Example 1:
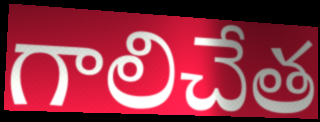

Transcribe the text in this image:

గాలిచేత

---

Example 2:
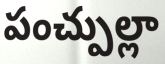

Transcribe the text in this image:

పంచ్పుల్లా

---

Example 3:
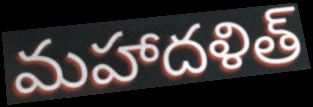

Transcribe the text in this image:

మహాదళిత్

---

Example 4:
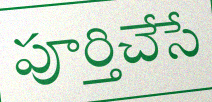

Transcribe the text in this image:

పూర్తిచేసే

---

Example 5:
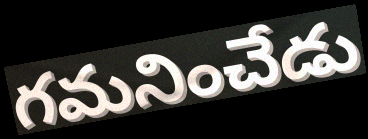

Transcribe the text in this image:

గమనించేడు